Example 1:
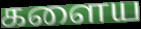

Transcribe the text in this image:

களைய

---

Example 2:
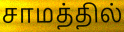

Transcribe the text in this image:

சாமத்தில்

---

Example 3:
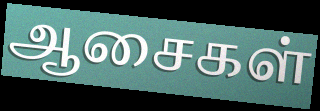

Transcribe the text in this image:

ஆசைகள்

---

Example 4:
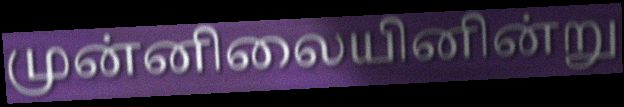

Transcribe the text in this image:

முன்னிலையினின்று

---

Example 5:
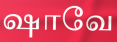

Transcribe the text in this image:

ஷாவே